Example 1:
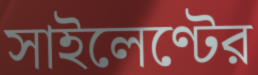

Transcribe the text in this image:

সাইলেণ্টের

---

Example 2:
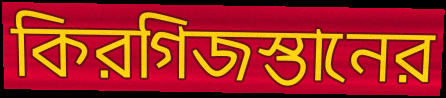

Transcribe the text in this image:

কিরগিজস্তানের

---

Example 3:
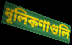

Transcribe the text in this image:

ধূলিকণাগুলি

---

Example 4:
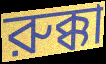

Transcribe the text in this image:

রুক্কা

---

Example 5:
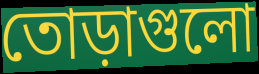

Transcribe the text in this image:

তোড়াগুলো